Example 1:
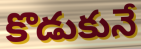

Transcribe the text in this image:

కొడుకునే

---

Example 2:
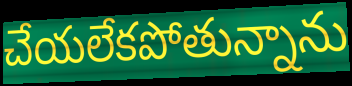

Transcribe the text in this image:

చేయలేకపోతున్నాను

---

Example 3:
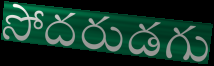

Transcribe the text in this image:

సోదరుడగు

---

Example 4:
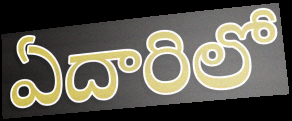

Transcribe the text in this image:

ఏదారిలో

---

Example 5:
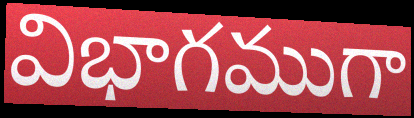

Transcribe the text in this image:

విభాగముగా